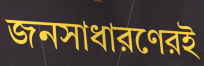
জনসাধারণেরই